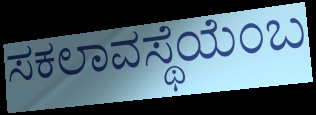
ಸಕಲಾವಸ್ಥೆಯೆಂಬ